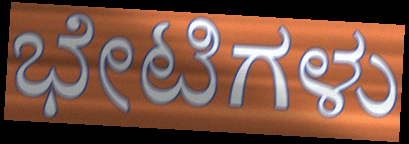
ಭೇಟಿಗಳು